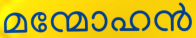
മന്മോഹൻ